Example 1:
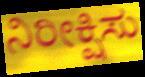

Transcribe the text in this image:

ನಿರೀಕ್ಷಿಸು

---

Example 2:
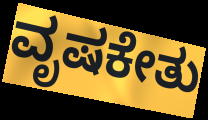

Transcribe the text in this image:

ವೃಷಕೇತು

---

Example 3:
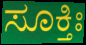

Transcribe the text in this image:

ಸೂಕ್ತಿಃ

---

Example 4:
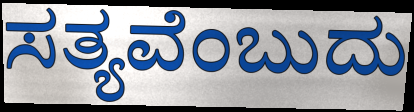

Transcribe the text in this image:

ಸತ್ಯವೆಂಬುದು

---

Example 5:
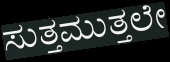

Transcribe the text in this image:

ಸುತ್ತಮುತ್ತಲೇ